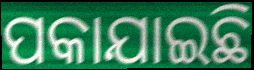
ପକାଯାଇଛି